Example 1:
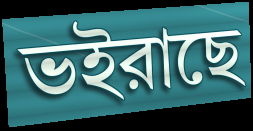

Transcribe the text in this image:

ভইরাছে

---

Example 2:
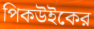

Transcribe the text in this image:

পিকউইকের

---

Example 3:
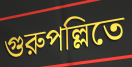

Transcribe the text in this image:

গুরুপল্লিতে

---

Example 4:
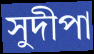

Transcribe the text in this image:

সুদীপা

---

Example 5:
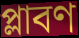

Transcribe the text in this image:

প্লাবণ